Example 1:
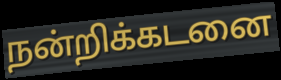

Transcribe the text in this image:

நன்றிக்கடனை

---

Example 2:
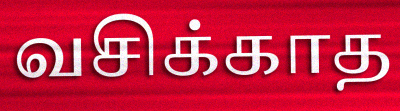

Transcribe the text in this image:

வசிக்காத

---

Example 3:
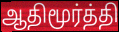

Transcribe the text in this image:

ஆதிமூர்த்தி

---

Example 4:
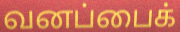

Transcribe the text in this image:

வனப்பைக்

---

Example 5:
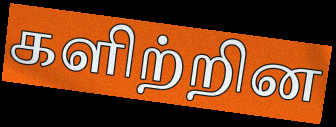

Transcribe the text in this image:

களிற்றின